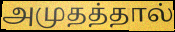
அமுதத்தால்